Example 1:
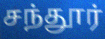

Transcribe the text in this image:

சந்தூர்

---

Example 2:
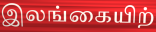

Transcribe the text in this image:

இலங்கையிற்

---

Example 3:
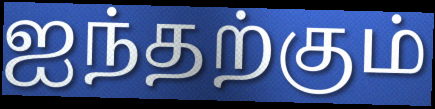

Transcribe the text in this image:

ஐந்தற்கும்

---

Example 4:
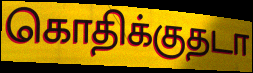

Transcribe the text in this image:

கொதிக்குதடா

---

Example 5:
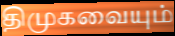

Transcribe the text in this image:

திமுகவையும்